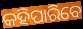
କହିପାରିବେ